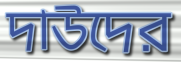
দাউদের